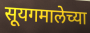
सूयगमालेच्या